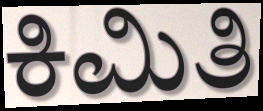
ಕಿಮಿತಿ